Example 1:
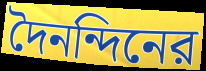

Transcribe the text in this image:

দৈনন্দিনের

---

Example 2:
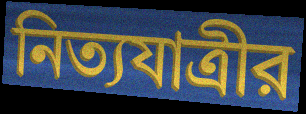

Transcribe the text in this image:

নিত্যযাত্রীর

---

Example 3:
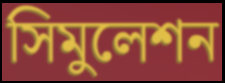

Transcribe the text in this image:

সিমুলেশন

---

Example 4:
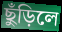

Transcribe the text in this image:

ছুঁড়িলে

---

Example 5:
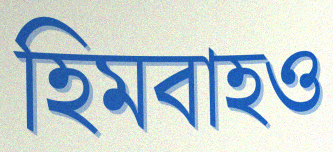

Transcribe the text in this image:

হিমবাহও